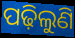
ପଢ଼ିଲୁଣି